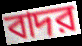
বাদর